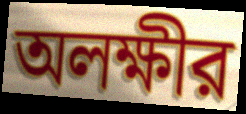
অলক্ষীর